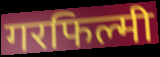
गरफिल्मी